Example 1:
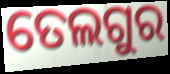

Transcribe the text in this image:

ତେଲଗୁର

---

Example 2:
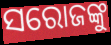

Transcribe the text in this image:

ସରୋଜଙ୍କୁ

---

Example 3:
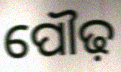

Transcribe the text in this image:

ପୌଢ଼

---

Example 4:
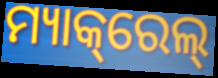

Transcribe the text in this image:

ମ୍ୟାକ୍‌ରେଲ୍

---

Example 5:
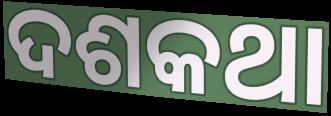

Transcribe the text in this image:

ଦଶକଥା